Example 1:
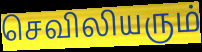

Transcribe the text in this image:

செவிலியரும்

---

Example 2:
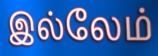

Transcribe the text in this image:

இல்லேம்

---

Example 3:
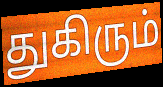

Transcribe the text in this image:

துகிரும்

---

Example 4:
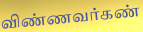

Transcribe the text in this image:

விண்ணவர்கண்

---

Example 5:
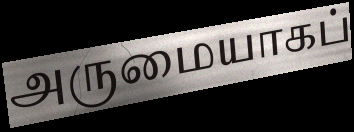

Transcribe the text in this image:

அருமையாகப்